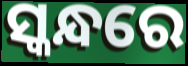
ସ୍କନ୍ଧରେ